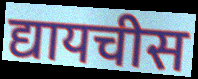
द्यायचीस